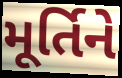
મૂર્તિને